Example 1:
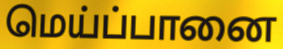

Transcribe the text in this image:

மெய்ப்பானை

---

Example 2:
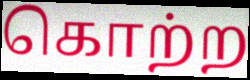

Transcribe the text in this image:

கொற்ற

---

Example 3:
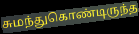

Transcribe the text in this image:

சுமந்துகொண்டிருந்த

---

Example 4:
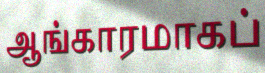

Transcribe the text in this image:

ஆங்காரமாகப்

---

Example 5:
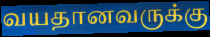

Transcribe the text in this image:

வயதானவருக்கு